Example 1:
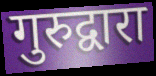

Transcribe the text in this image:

गुरुद्वारा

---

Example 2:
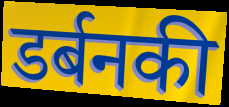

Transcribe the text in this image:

डर्बनकी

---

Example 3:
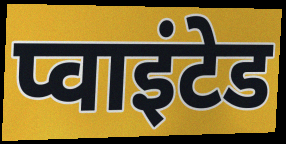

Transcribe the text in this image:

प्वाइंटेड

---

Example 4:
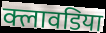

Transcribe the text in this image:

क्लावडिया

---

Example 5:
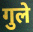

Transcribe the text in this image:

गुले